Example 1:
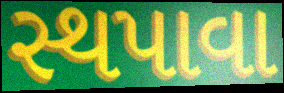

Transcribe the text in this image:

સ્થપાવા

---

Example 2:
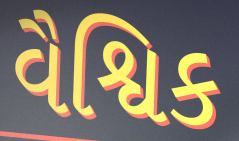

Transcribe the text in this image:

વૈશ્વિક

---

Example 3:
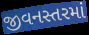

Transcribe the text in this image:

જીવનસ્તરમાં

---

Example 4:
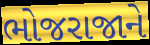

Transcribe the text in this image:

ભોજરાજાને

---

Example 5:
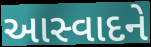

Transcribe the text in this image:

આસ્વાદને